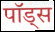
पॉड्स